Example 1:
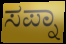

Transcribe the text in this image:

ಸಪ್ನಾ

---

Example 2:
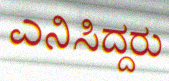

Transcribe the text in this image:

ಎನಿಸಿದ್ದರು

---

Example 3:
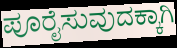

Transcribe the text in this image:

ಪೂರೈಸುವುದಕ್ಕಾಗಿ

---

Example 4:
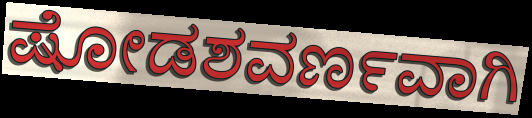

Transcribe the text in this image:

ಷೋಡಶವರ್ಣವಾಗಿ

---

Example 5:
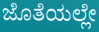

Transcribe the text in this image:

ಜೊತೆಯಲ್ಲೇ